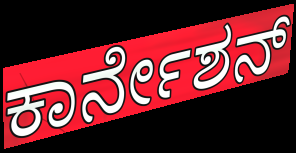
ಕಾರ್ನೇಶನ್